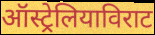
ऑस्ट्रेलियाविराट